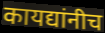
कायद्यांनीच